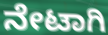
ನೇಟಾಗಿ